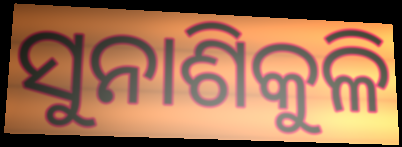
ସୁନାଶିକୁଳି